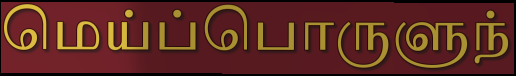
மெய்ப்பொருளுந்